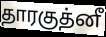
தாரகுத்னீ